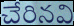
చేరినవి